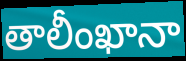
తాలీంఖానా